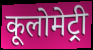
कूलोमेट्री